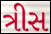
ત્રીસ